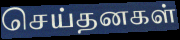
செய்தனகள்